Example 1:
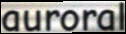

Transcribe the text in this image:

auroral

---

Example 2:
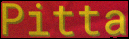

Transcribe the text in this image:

Pitta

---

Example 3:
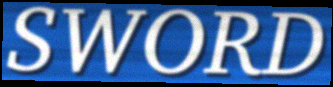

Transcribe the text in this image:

SWORD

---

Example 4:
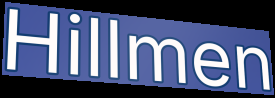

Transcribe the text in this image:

Hillmen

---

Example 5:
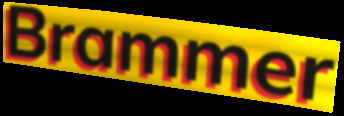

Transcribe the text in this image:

Brammer